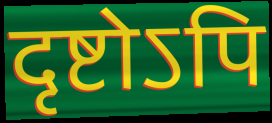
दृष्टोऽपि